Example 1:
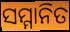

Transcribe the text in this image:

ସମ୍ମାନିତ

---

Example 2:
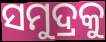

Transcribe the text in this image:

ସମୁଦ୍ରକୁ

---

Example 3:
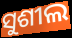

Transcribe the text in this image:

ସୁଶୀଲ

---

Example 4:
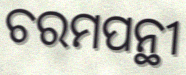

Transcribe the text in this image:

ଚରମପନ୍ଥୀ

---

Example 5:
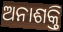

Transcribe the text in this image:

ଅନାଶକ୍ତି